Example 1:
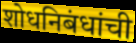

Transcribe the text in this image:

शोधनिबंधांची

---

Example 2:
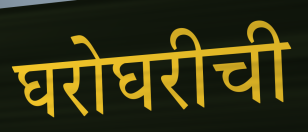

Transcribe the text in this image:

घरोघरीची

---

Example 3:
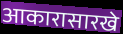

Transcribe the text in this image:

आकारासारखे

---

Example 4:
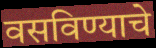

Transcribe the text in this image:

वसविण्याचे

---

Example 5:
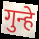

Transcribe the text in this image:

गुन्हे